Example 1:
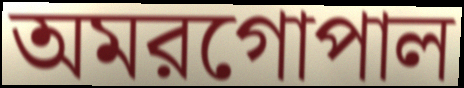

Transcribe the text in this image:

অমরগোপাল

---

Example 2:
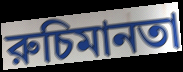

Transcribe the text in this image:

রুচিমানতা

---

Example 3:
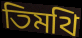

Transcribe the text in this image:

তিমথি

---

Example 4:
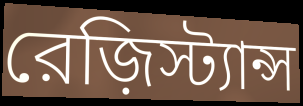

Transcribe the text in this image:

রেজ়িস্ট্যান্স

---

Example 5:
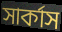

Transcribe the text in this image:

সার্কাস